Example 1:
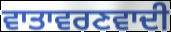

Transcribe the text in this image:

ਵਾਤਾਵਰਣਵਾਦੀ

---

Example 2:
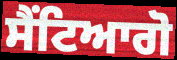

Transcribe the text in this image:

ਸੈਂਟਿਆਗੋ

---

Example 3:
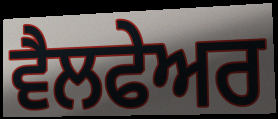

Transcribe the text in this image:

ਵੈਲਫੇਅਰ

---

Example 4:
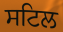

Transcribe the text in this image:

ਸਟਿਲ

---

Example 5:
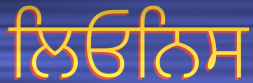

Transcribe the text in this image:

ਲਿਓਨਿਸ